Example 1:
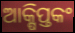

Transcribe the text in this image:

ଆକ୍ଷିପ୍ତକଂ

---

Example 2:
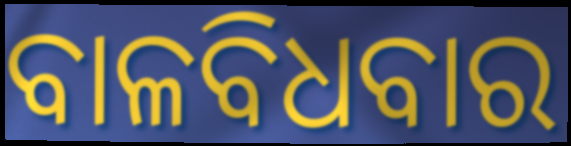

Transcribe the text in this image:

ବାଳବିଧବାର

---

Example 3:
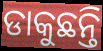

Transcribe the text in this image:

ଡାକୁଛନ୍ତି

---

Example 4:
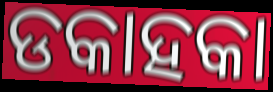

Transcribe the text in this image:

ଡକାହକା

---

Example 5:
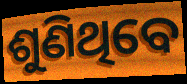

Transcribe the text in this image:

ଶୁଣିଥିବେ